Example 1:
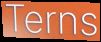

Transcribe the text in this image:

Terns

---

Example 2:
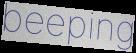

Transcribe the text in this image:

beeping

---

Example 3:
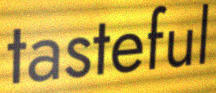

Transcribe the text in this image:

tasteful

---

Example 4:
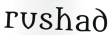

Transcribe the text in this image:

rushad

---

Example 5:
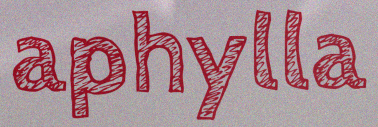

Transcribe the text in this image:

aphylla